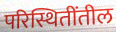
परिस्थितींतील